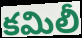
కమిలీ